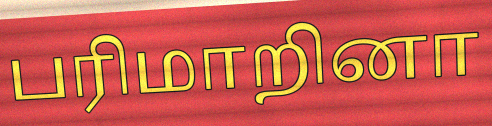
பரிமாறினா